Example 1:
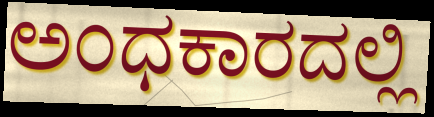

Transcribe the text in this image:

ಅಂಧಕಾರದಲ್ಲಿ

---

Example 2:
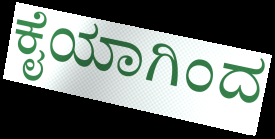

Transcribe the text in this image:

ಕೈಯಾಗಿಂದ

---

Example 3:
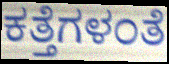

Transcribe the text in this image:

ಕತ್ತೆಗಳಂತೆ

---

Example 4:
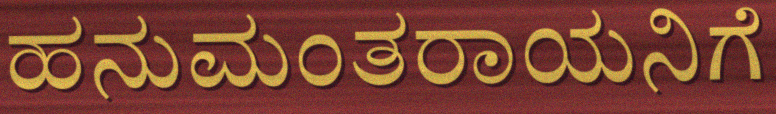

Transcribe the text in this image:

ಹನುಮಂತರಾಯನಿಗೆ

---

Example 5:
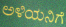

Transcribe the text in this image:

ಅಳಿಯನಿಗೆ